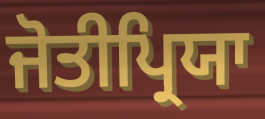
ਜੋਤੀਪ੍ਰਿਯਾ